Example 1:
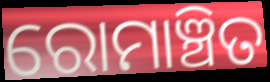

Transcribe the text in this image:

ରୋମାଞ୍ଚିତ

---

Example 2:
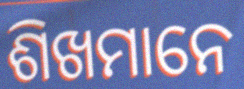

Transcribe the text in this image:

ଶିଖମାନେ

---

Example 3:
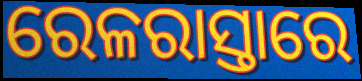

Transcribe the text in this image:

ରେଳରାସ୍ତାରେ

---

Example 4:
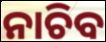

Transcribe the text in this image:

ନାଚିବ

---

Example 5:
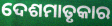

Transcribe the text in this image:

ଦେଶମାତୃକାର